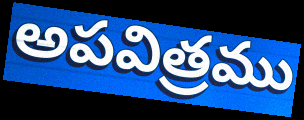
అపవిత్రము